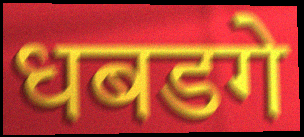
धबडगे